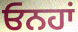
ਓਨਹਾਂ